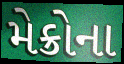
મેક્રોના